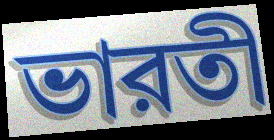
ভারতী